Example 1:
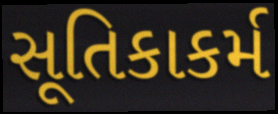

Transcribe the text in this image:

સૂતિકાકર્મ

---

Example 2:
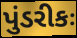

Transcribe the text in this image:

પુંડરીકઃ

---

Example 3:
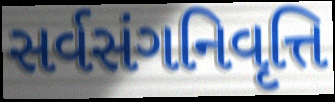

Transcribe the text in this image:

સર્વસંગનિવૃત્તિ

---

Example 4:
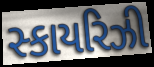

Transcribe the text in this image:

સ્કાયરિઝી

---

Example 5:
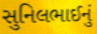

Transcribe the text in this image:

સુનિલભાઈનું